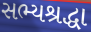
સભ્યશ્રદ્ધા